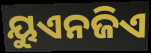
ୟୁଏନଜିଏ